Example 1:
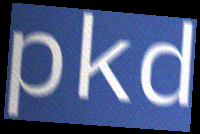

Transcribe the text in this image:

pkd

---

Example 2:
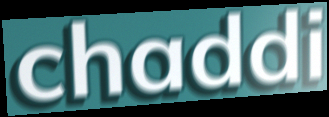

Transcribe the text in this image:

chaddi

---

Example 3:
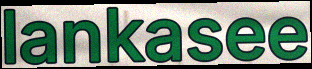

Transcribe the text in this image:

lankasee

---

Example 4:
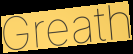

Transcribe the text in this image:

Greath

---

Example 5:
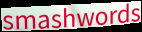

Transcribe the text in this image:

smashwords